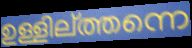
ഉള്ളില്ത്തന്നെ